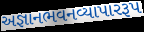
અજ્ઞાનભવનવ્યાપારરૂપ